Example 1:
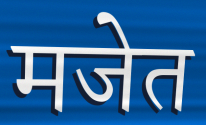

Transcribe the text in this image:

मजेत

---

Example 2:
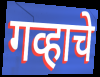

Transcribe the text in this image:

गव्हाचे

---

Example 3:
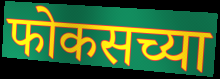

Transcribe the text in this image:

फोकसच्या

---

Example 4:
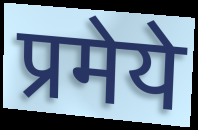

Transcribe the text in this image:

प्रमेये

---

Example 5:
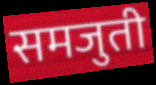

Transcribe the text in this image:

समजुती